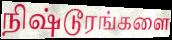
நிஷ்டூரங்களை